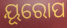
ୟୂରୋପ